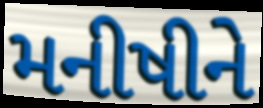
મનીષીને